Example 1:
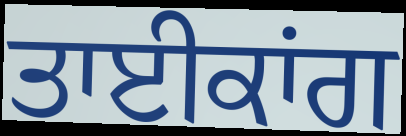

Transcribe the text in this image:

ਤਾਈਕਾਂਗ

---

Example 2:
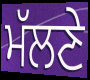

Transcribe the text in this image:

ਮੱਲਣੇ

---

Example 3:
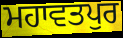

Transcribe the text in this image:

ਮਹਾਵਤਪੁਰ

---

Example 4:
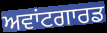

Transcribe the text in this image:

ਅਵਾਂਟਗਾਰਡ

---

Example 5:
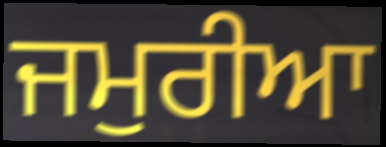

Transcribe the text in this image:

ਜਮੁਰੀਆ